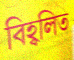
বিহ্বলিত